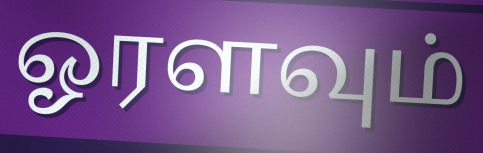
ஓரளவும்